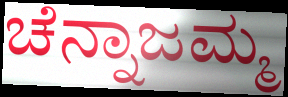
ಚೆನ್ನಾಜಮ್ಮ